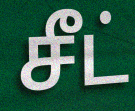
சீட்